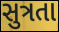
સુત્રતા